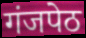
गंजपेठ